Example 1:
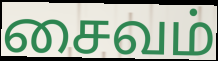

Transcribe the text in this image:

சைவம்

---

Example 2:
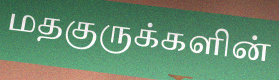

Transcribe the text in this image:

மதகுருக்களின்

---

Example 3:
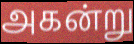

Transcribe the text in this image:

அகன்று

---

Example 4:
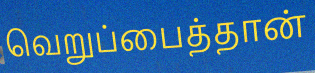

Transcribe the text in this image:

வெறுப்பைத்தான்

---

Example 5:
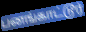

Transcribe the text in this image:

பனங்காட்டூர்